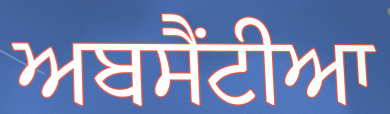
ਅਬਸੈਂਟੀਆ